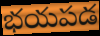
భయపడ